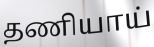
தணியாய்